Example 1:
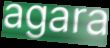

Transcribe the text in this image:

agara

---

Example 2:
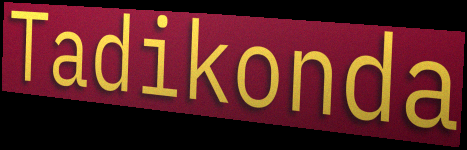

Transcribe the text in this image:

Tadikonda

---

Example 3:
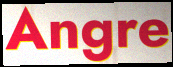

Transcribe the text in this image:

Angre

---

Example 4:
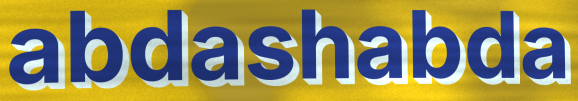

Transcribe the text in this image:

abdashabda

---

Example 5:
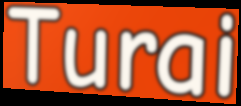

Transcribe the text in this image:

Turai